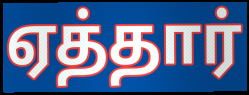
ஏத்தார்